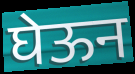
घेऊन